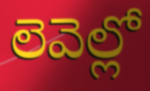
లెవెల్లో